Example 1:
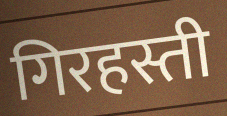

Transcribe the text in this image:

गिरहस्ती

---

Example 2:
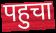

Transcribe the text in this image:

पहुचा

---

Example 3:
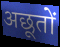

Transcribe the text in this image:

अछूतों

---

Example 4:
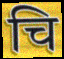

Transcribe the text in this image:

चि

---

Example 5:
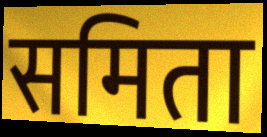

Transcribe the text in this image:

समिता